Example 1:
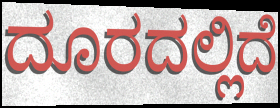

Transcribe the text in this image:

ದೂರದಲ್ಲಿದೆ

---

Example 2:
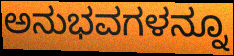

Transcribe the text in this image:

ಅನುಭವಗಳನ್ನೂ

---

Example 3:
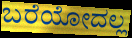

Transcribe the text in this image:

ಬರೆಯೋದಲ್ಲ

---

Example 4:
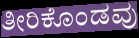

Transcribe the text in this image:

ತೀರಿಕೊಂಡವು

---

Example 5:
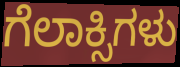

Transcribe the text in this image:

ಗೆಲಾಕ್ಸಿಗಳು